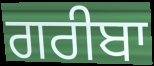
ਗਰੀਬਾ